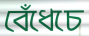
বেঁধেচে